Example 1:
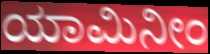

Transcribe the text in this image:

ಯಾಮಿನೀಂ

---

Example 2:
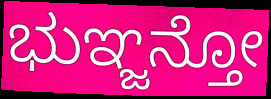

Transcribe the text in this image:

ಭುಞ್ಜನ್ತೋ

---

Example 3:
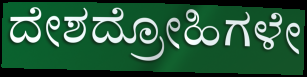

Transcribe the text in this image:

ದೇಶದ್ರೋಹಿಗಳೇ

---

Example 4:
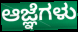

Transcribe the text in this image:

ಆಜ್ಞೆಗಳು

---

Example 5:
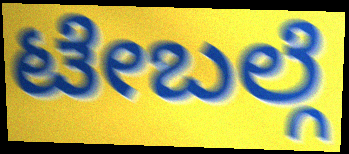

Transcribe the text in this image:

ಟೇಬಲ್ಗೆ